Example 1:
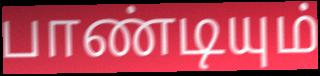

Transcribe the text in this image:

பாண்டியும்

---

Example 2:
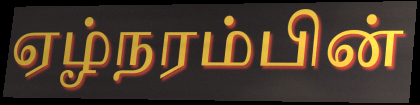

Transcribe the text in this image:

ஏழ்நரம்பின்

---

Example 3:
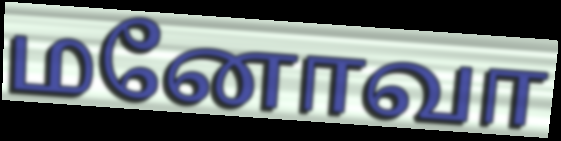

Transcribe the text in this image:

மனோவா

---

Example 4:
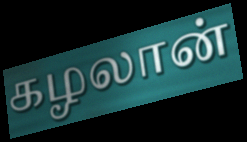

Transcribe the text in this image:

கழலான்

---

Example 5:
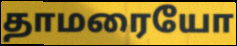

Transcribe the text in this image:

தாமரையோ